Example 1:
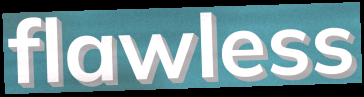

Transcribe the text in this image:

flawless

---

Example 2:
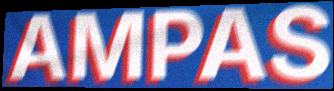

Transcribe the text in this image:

AMPAS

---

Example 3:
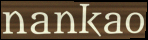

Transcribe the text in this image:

nankao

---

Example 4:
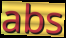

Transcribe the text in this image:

abs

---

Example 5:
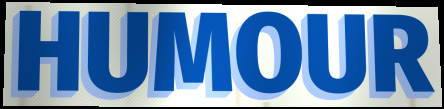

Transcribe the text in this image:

HUMOUR